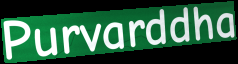
Purvarddha